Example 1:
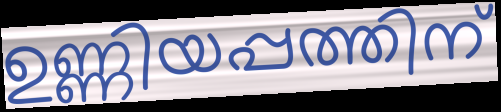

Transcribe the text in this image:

ഉണ്ണിയപ്പത്തിന്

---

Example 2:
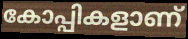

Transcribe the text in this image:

കോപ്പികളാണ്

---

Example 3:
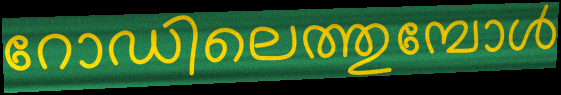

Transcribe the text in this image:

റോഡിലെത്തുമ്പോൾ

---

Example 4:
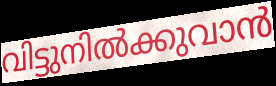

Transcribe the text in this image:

വിട്ടുനിൽക്കുവാൻ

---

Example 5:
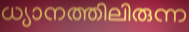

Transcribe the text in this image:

ധ്യാനത്തിലിരുന്ന